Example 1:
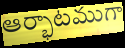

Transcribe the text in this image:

ఆర్భాటముగా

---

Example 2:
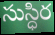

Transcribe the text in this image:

సుస్ధిర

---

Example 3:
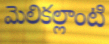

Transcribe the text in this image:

మెలికల్లాంటి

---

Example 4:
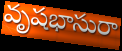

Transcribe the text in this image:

వృషభాసురా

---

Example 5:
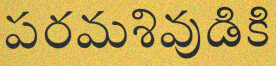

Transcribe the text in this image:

పరమశివుడికి